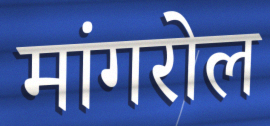
मांगरोल